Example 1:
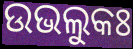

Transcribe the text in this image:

ଉଭଲୁକଃ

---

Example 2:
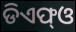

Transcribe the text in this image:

ଡିଏଫ୍ଓ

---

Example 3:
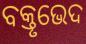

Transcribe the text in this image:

ବକ୍ତୃଭେଦ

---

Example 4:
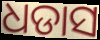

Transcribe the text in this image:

ଧଡାସ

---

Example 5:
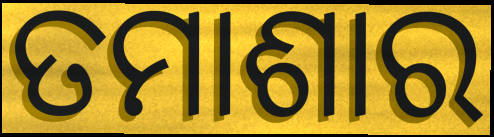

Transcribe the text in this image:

ତମାଶାର